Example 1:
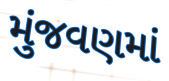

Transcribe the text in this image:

મુંજવણમાં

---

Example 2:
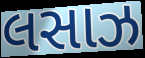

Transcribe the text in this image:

લસાઝ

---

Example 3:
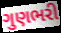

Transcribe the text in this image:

ગુણભરી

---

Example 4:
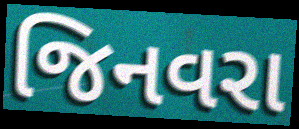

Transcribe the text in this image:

જિનવરા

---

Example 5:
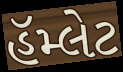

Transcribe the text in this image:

હૅમ્લેટ